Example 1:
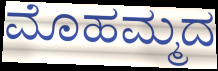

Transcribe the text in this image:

ಮೊಹಮ್ಮದ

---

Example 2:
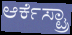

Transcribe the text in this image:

ಆರ್ಕೆಸ್ಟ್ರಾ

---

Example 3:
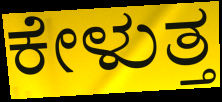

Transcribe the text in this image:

ಕೇಳುತ್ತ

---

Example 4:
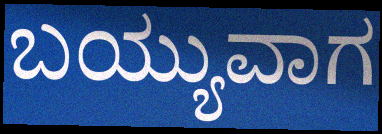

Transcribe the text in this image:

ಬಯ್ಯುವಾಗ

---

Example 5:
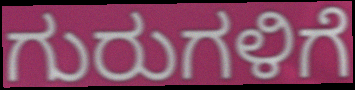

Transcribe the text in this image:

ಗುರುಗಳಿಗೆ